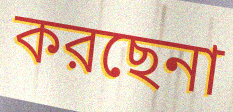
করছেনা